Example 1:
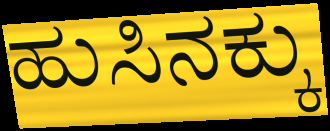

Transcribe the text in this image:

ಹುಸಿನಕ್ಕು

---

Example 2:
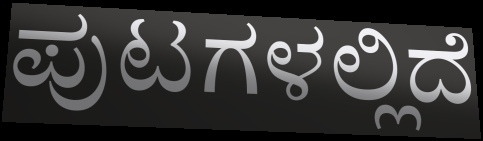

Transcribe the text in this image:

ಪುಟಗಳಲ್ಲಿದೆ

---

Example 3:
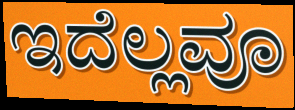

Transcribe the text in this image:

ಇದೆಲ್ಲವೂ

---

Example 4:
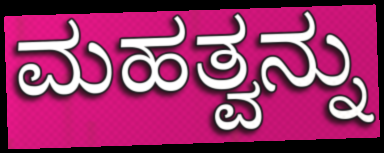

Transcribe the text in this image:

ಮಹತ್ವನ್ನು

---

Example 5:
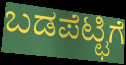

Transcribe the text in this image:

ಬಡಪೆಟ್ಟಿಗೆ